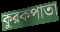
কুরকপাতা